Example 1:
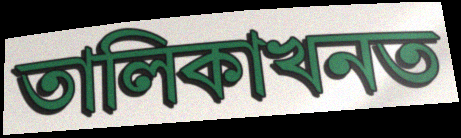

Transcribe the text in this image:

তালিকাখনত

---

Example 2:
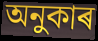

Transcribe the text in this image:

অনুকাৰ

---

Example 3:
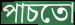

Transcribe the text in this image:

পাচতো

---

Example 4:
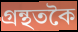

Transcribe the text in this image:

গ্ৰন্থতকৈ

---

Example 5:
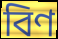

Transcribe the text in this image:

বিণ